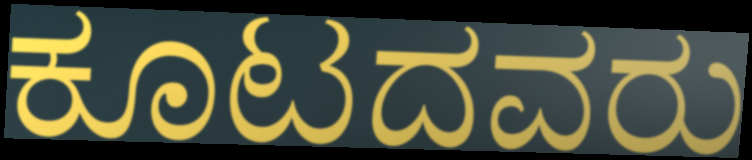
ಕೂಟದವರು